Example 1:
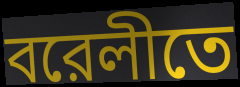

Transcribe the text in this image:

বরেলীতে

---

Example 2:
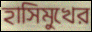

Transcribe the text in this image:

হাসিমুখের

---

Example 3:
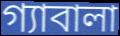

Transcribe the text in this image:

গ্যাবালা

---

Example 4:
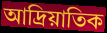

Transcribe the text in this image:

আদ্রিয়াতিক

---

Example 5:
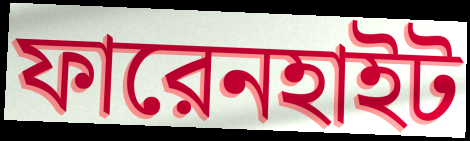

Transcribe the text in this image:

ফারেনহাইট